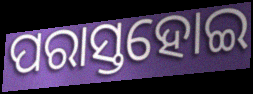
ପରାସ୍ତହୋଇ